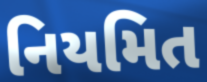
નિયમિત